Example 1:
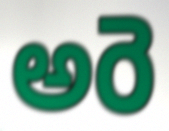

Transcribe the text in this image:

అరె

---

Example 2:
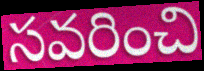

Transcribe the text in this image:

సవరించి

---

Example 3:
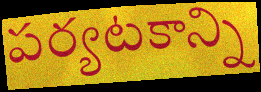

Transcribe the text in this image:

పర్యటకాన్ని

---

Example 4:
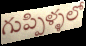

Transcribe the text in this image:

గుప్పిళ్ళలో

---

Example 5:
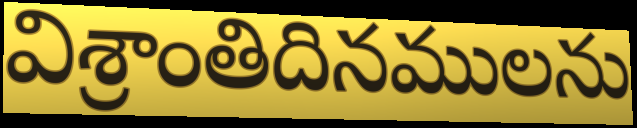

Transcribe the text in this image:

విశ్రాంతిదినములను